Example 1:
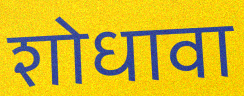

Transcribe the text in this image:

शोधावा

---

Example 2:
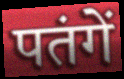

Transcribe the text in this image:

पतंगें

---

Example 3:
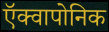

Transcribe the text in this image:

ऍक्वापोनिक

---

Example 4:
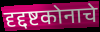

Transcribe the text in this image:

दृद्दष्टकोनाचे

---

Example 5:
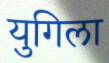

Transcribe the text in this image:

युगिला